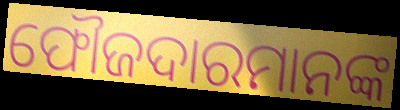
ଫୌଜଦାରମାନଙ୍କ